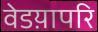
वेडय़ापरि